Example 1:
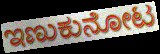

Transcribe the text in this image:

ಇಣುಕುನೋಟ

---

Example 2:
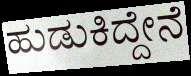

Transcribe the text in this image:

ಹುಡುಕಿದ್ದೇನೆ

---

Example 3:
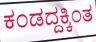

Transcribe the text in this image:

ಕಂಡದ್ದಕ್ಕಿಂತ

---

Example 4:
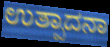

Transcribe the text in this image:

ಉತ್ಪಾದನಾ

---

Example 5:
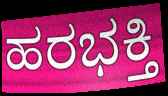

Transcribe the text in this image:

ಹರಭಕ್ತಿ